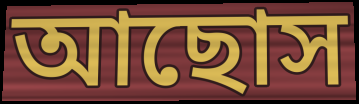
আছোস